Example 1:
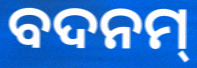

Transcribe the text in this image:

ବଦନମ୍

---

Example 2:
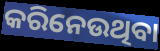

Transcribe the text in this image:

କରିନେଉଥିବା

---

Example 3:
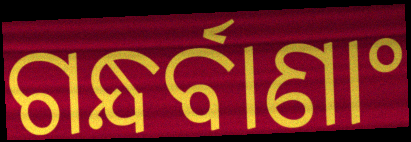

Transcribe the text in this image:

ଗନ୍ଧର୍ବାଣାଂ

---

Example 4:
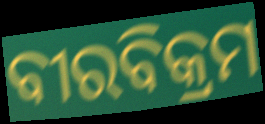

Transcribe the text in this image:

ବୀରବିକ୍ରମ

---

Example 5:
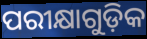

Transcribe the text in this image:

ପରୀକ୍ଷାଗୁଡ଼ିକ